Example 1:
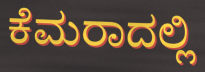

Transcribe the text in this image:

ಕೆಮರಾದಲ್ಲಿ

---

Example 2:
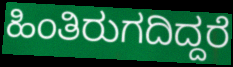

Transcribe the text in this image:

ಹಿಂತಿರುಗದಿದ್ದರೆ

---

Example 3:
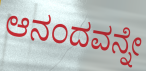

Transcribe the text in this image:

ಆನಂದವನ್ನೇ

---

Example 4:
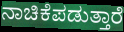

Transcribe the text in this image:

ನಾಚಿಕೆಪಡುತ್ತಾರೆ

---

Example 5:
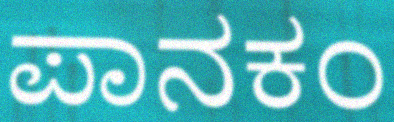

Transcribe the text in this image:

ಪಾನಕಂ